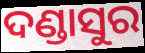
ଦଣ୍ଡାସୁର